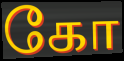
கோ